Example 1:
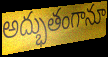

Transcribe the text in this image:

అద్భుతంగానూ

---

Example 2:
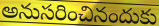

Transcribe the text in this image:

అనుసరించినందుకు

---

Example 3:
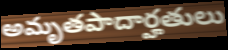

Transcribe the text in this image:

అమృతపాదార్హతులు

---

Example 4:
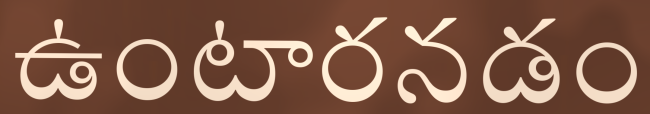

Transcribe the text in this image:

ఉంటారనడం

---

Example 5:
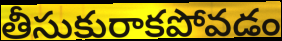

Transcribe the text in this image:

తీసుకురాకపోవడం